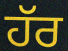
ਹੱਰ